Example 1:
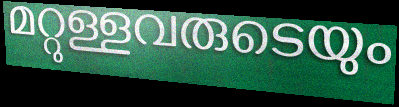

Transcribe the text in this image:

മറ്റുള്ളവരുടെയും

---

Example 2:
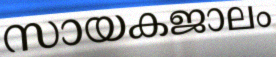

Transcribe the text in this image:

സായകജാലം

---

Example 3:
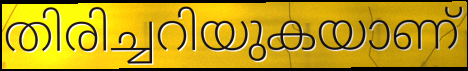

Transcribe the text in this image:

തിരിച്ചറിയുകയാണ്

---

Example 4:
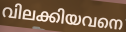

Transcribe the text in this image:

വിലക്കിയവനെ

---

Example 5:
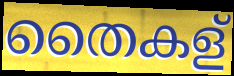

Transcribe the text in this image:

തൈകള്